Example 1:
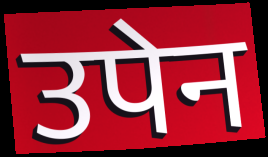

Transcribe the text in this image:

उपेन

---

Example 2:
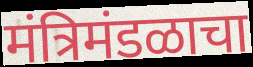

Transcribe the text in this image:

मंत्रिमंडळाचा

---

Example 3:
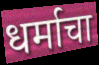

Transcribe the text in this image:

धर्माचा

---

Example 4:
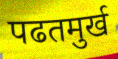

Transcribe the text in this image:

पढतमुर्ख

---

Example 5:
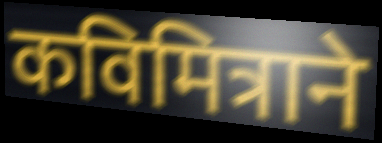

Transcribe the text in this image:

कविमित्राने